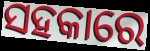
ସହକାରେ